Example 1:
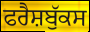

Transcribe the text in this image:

ਫਰੈਸ਼ਬੁੱਕਸ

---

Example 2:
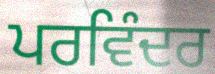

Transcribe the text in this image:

ਪਰਵਿੰਦਰ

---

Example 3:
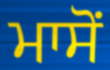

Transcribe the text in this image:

ਮਾਸੋਂ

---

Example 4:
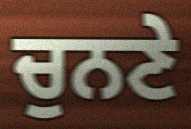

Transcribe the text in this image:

ਚੁਨਣੇ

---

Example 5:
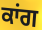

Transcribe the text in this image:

ਕਾਂਗ